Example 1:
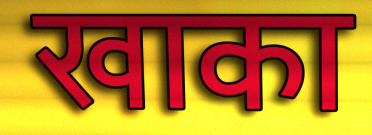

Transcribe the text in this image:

खाका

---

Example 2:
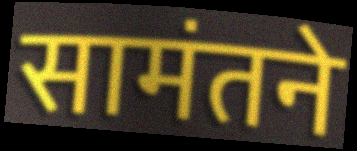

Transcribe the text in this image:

सामंतने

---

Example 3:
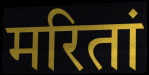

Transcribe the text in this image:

मरितां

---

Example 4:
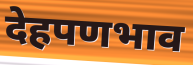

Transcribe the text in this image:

देहपणभाव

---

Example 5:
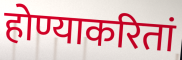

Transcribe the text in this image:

होण्याकरितां